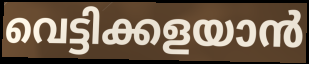
വെട്ടിക്കളയാൻ